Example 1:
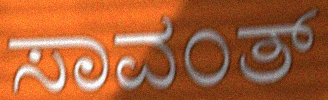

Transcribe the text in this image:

ಸಾವಂತ್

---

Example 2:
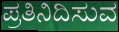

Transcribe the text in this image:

ಪ್ರತಿನಿದಿಸುವ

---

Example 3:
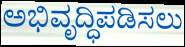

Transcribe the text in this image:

ಅಭಿವೃದ್ಧಿಪಡಿಸಲು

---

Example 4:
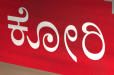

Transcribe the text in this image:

ಕೋರಿ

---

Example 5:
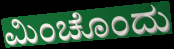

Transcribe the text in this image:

ಮಿಂಚೊಂದು